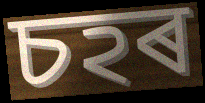
চহৰ